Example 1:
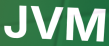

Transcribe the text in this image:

JVM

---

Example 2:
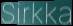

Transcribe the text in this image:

Sirkka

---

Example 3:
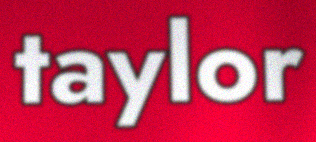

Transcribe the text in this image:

taylor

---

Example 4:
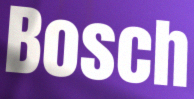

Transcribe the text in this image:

Bosch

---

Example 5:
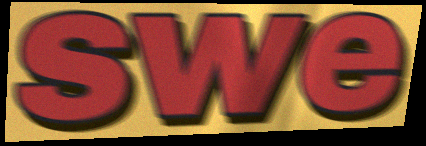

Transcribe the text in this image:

swe